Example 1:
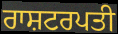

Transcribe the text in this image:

ਰਾਸ਼ਟਰਪਤੀ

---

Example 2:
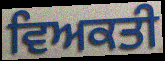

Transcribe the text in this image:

ਵਿਅਕਤੀ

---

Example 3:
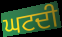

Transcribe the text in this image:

ਘਟਦੀ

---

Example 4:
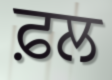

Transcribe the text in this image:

ਫ਼ਲ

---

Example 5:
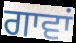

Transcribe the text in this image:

ਗਾਵਾਂ